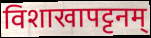
विशाखापट्टनम्